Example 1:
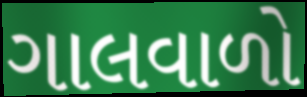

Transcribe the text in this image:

ગાલવાળો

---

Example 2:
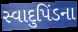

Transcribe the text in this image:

સ્વાદુપિંડના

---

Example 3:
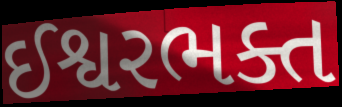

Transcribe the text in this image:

ઈશ્વરભક્ત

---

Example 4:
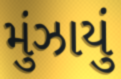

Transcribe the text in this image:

મુંઝાયું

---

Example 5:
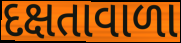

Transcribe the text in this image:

દક્ષતાવાળા